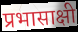
प्रभासाक्षी